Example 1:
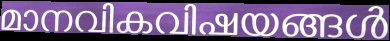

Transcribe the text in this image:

മാനവികവിഷയങ്ങൾ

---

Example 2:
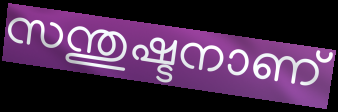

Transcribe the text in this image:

സന്തുഷ്ടനാണ്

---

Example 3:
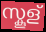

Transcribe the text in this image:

സ്കൂള്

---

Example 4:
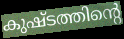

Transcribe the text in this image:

കുഷ്ടത്തിന്റെ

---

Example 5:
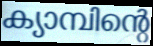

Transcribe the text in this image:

ക്യാമ്പിന്റെ